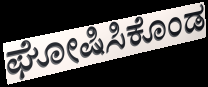
ಘೋಷಿಸಿಕೊಂಡ